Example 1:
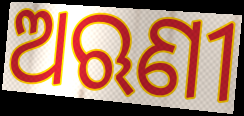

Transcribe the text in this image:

ଅଋଣୀ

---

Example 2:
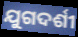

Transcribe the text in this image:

ଯୁଗଦର୍ଶୀ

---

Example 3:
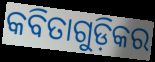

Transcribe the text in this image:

କବିତାଗୁଡ଼ିକର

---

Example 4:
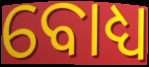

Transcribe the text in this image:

ବୋଧ୍ୟ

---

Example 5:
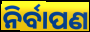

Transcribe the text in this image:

ନିର୍ବାପଣ